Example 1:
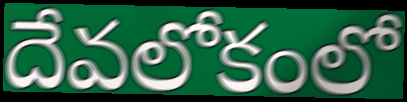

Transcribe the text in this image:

దేవలోకంలో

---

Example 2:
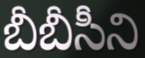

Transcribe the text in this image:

బీబీసీని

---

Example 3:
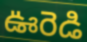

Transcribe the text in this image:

ఊరెడి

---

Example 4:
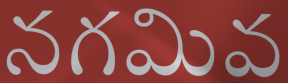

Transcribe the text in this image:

నగమివ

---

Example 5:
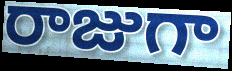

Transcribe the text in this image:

రాజుగా